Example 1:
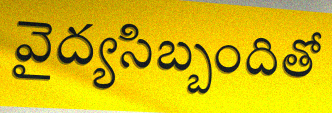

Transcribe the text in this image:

వైద్యసిబ్బందితో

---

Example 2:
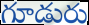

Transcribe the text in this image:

గూడురు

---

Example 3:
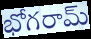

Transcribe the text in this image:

భోగరామ్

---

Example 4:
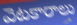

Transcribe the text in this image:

వెటకారాలు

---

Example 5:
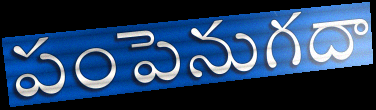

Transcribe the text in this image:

పంపెనుగదా